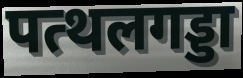
पत्थलगड्डा